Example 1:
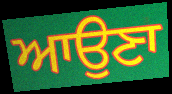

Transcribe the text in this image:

ਆਉਣਾ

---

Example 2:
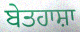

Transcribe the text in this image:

ਬੇਤਹਾਸ਼ਾ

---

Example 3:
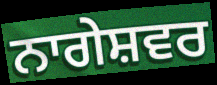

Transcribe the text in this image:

ਨਾਗੇਸ਼ਵਰ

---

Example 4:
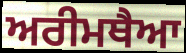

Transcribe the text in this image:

ਅਰੀਮਥੈਆ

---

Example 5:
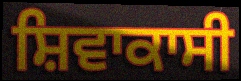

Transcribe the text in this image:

ਸ਼ਿਵਾਕਾਸੀ